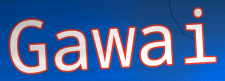
Gawai